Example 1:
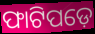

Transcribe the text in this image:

ଫାଟିପଡ଼େ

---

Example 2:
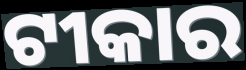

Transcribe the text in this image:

ଟୀକାର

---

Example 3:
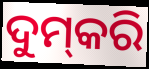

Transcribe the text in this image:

ଦୁମ୍‍କରି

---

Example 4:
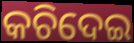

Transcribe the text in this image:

କଚିଦେଇ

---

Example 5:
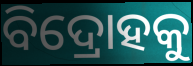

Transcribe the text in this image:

ବିଦ୍ରୋହକୁ